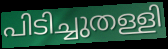
പിടിച്ചുതള്ളി